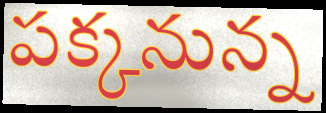
పక్కనున్న